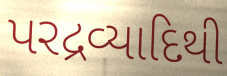
પરદ્રવ્યાદિથી